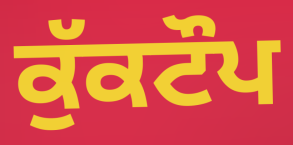
ਕੁੱਕਟੌਪ